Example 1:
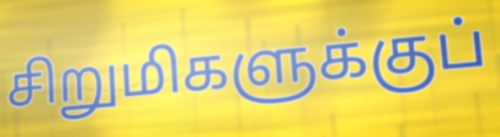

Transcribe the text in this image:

சிறுமிகளுக்குப்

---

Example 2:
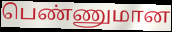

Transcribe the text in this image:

பெண்ணுமான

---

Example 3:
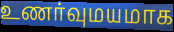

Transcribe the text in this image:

உணர்வுமயமாக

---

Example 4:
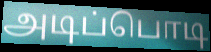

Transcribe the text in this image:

அடிப்பொடி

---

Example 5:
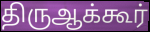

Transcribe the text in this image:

திருஆக்கூர்